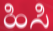
ಹಿಸಿ